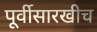
पूर्वीसारखीच